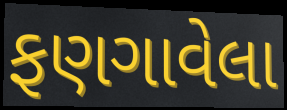
ફણગાવેલા